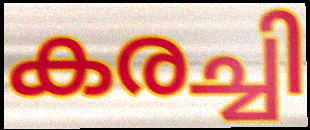
കരച്ചി